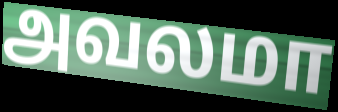
அவலமா